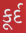
કૂર્દ